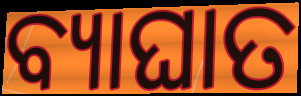
ବ୍ୟାଘାତ